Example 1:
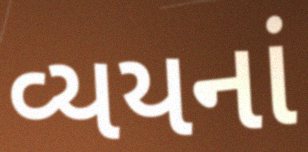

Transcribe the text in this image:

વ્યયનાં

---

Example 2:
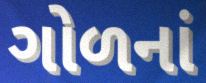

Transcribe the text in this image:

ગોળનાં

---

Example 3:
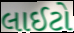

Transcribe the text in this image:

લાઈટો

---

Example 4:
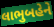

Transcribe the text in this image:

લાભુબહેને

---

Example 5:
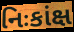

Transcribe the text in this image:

નિઃકાંક્ષ